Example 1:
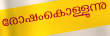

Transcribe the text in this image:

രോഷംകൊള്ളുന്നു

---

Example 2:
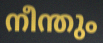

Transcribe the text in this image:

നീന്തും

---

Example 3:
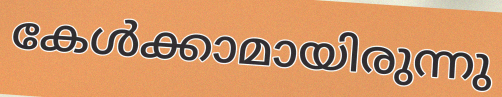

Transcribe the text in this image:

കേൾക്കാമായിരുന്നു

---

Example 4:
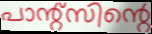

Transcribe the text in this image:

പാന്റ്സിന്റെ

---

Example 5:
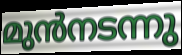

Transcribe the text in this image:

മുൻനടന്നു